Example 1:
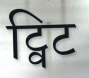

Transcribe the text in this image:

ट्विट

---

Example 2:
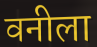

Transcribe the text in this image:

वनीला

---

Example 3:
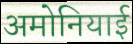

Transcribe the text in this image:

अमोनियाई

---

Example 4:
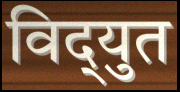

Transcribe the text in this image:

विद्‌युत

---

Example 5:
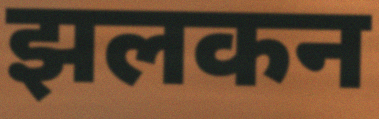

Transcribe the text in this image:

झलकन